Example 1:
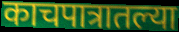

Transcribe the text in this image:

काचपात्रातल्या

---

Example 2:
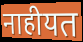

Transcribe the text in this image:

नाहीयत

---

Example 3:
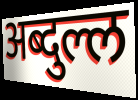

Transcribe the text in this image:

अब्दुल्ल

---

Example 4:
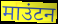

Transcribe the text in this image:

माउंटन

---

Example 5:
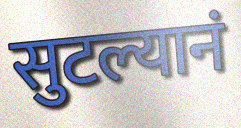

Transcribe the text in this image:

सुटल्यानं